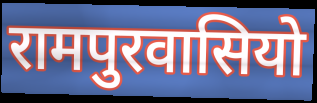
रामपुरवासियो